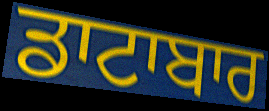
ਡਾਟਾਬਾਰ